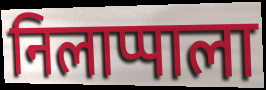
निलाप्पाला